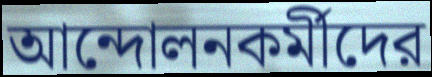
আন্দোলনকর্মীদের